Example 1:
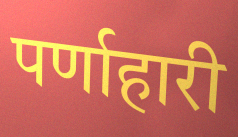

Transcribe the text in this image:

पर्णाहारी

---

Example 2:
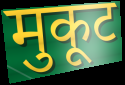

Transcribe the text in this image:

मुकूट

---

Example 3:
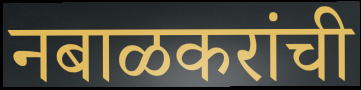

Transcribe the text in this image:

नबाळकरांची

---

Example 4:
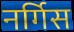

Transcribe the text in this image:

नर्गिस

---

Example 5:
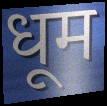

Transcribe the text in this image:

धूम